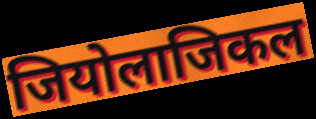
जियोलाजिकल